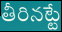
తీరినట్టే